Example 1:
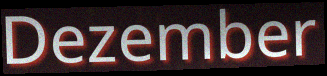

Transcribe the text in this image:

Dezember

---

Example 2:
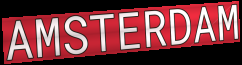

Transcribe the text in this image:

AMSTERDAM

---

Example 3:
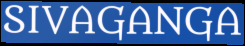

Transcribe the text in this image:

SIVAGANGA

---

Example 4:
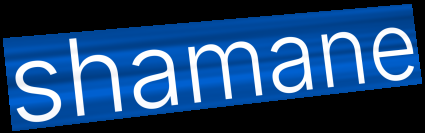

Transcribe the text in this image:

shamane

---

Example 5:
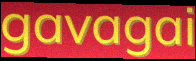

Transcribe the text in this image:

gavagai